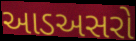
આડઅસરો